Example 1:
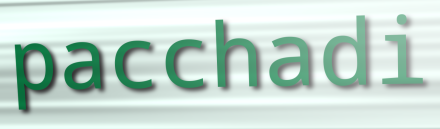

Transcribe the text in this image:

pacchadi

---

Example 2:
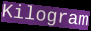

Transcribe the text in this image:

Kilogram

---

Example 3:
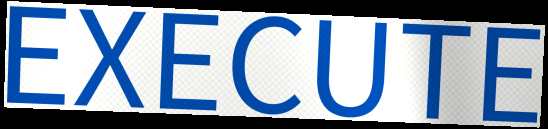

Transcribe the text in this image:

EXECUTE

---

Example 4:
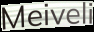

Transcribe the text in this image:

Meiveli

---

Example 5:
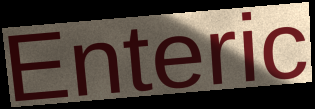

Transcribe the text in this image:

Enteric